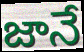
జానే